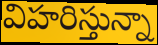
విహరిస్తున్నా